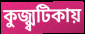
কুজ্ঝ্বটিকায়